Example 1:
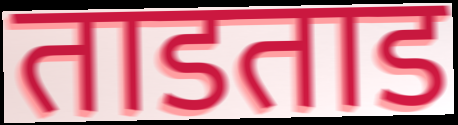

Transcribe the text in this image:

ताडताड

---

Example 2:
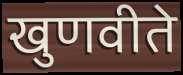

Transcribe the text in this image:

खुणवीते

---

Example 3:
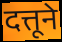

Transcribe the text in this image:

दत्तूने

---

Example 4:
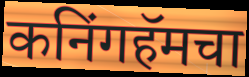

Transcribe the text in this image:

कनिंगहॅमचा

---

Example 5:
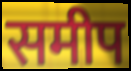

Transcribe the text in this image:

समीप